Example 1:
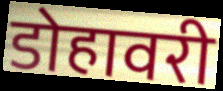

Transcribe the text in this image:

डोहावरी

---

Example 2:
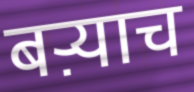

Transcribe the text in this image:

बऱ्‍याच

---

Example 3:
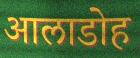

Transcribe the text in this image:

आलाडोह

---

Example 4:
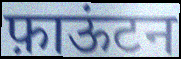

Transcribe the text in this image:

फ़ाऊंटन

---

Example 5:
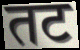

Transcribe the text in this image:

तट